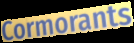
Cormorants